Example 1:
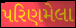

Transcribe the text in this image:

પરિણમેલા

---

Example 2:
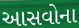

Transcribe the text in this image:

આસવોના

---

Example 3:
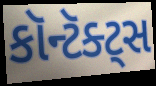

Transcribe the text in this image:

કૉન્ટૅક્ટ્સ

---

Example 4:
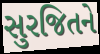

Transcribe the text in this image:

સુરજિતને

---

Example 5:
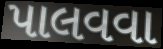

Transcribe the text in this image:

પાલવવા